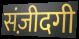
संज़ीदगी